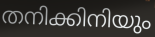
തനിക്കിനിയും